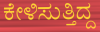
ಕೇಳಿಸುತ್ತಿದ್ದ